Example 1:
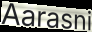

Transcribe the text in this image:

Aarasni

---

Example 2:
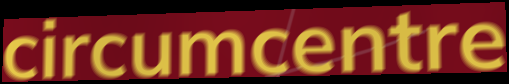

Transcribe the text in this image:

circumcentre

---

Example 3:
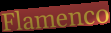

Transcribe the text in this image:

Flamenco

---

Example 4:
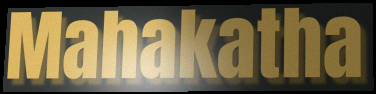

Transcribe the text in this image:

Mahakatha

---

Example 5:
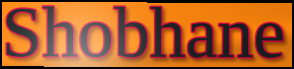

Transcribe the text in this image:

Shobhane